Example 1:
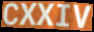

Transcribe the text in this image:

CXXIV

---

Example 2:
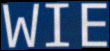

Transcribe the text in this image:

WIE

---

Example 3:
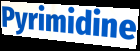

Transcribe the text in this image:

Pyrimidine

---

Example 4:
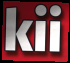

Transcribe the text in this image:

kii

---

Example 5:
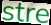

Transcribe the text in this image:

stre